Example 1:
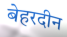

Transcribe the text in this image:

बेहरदीन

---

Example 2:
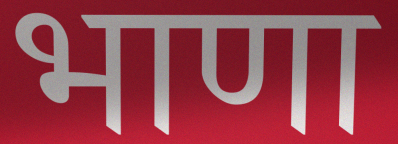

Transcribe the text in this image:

भाणा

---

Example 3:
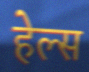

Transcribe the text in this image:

हेल्स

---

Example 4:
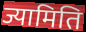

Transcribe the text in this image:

ज्यामिति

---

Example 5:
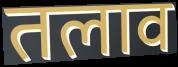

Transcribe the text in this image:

तलाव